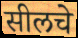
सीलचे